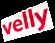
velly